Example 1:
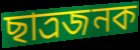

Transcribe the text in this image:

ছাত্ৰজনক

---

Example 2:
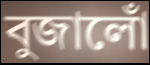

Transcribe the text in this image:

বুজালোঁ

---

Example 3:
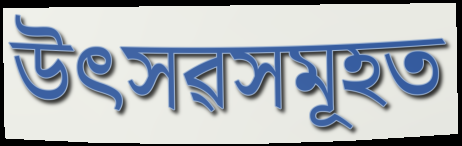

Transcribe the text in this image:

উৎসৱসমূহত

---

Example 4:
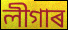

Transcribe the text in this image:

লীগাৰ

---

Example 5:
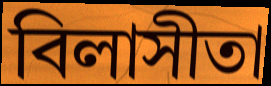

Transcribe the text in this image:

বিলাসীতা